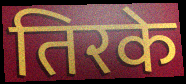
तिरके